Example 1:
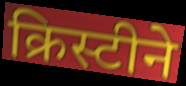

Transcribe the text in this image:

क्रिस्टीने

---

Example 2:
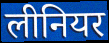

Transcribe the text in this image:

लीनियर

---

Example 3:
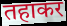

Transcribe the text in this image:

तहाकर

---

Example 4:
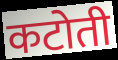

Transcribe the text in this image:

कटोती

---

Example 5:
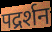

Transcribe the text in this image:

पद्रर्शन